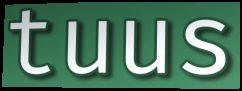
tuus